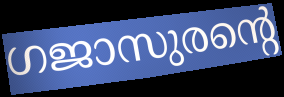
ഗജാസുരന്റെ